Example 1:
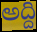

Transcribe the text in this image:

అద్ది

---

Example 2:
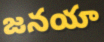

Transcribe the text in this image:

జనయా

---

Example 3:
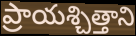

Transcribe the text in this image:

ప్రాయశ్చిత్తాని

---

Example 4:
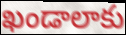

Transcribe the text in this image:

ఖండాలాకు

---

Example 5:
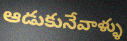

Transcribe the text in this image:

ఆడుకునేవాళ్ళు